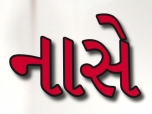
નાસે